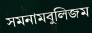
সমনামবুলিজম